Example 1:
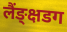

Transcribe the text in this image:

लैंङ्क्षडग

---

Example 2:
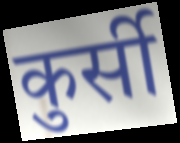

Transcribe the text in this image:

कुर्सी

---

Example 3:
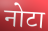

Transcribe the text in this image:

नोटा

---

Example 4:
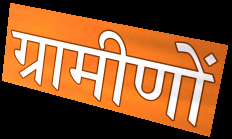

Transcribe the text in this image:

ग्रामीणों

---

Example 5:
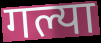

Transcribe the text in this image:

गल्या